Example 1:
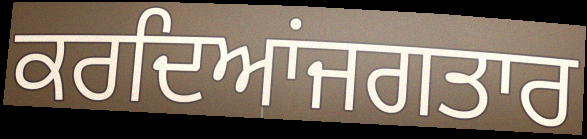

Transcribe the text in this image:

ਕਰਦਿਆਂਜਗਤਾਰ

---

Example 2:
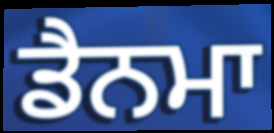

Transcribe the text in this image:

ਡੈਨਮਾ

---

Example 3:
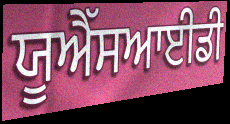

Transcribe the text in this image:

ਯੂਐੱਸਆਈਡੀ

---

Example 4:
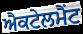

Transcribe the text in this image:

ਐਕਟੇਲਮੈਂਟ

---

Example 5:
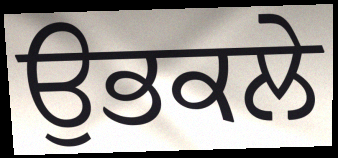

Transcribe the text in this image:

ਉਭਕਲੇ